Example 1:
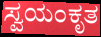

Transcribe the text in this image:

ಸ್ವಯಂಕೃತ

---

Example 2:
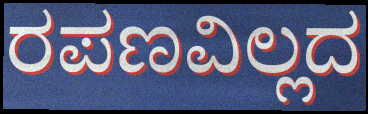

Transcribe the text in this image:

ರಪಣವಿಲ್ಲದ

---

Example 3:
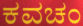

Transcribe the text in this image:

ಕವಚಂ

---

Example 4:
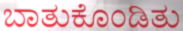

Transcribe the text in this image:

ಬಾತುಕೊಂಡಿತು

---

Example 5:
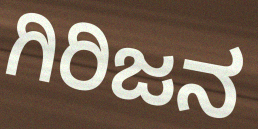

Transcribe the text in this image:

ಗಿರಿಜನ